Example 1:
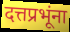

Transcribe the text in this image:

दत्तप्रभूंना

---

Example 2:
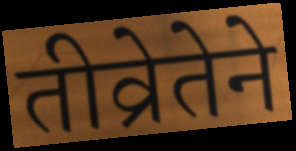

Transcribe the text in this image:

तीव्रेतेने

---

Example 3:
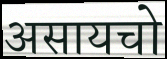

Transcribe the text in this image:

असायचो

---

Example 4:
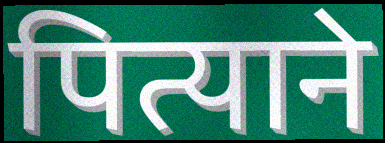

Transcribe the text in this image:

पित्याने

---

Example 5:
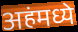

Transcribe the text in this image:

अहंमध्ये